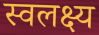
स्वलक्ष्य